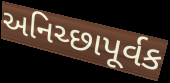
અનિચ્છાપૂર્વક